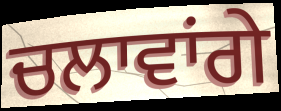
ਚਲਾਵਾਂਗੇ